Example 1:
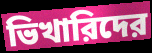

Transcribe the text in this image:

ভিখারিদের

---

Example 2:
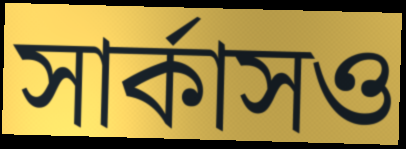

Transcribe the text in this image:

সার্কাসও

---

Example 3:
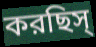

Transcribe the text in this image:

করছিস্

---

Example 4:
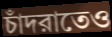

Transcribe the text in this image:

চাঁদরাতেও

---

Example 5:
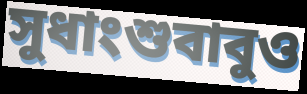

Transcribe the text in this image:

সুধাংশুবাবুও